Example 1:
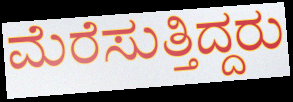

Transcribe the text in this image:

ಮೆರೆಸುತ್ತಿದ್ದರು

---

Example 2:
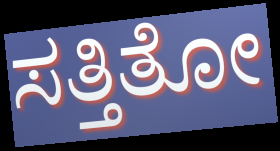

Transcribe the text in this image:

ಸತ್ತಿತೋ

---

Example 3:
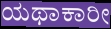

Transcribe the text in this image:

ಯಥಾಕಾರೀ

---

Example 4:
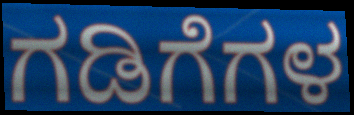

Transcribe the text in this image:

ಗಡಿಗೆಗಳ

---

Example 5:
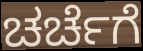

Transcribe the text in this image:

ಚರ್ಚೆಗೆ